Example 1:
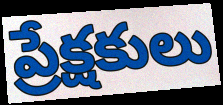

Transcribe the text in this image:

ప్రేక్షకులు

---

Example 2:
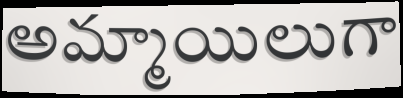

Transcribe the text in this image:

అమ్మాయిలుగా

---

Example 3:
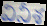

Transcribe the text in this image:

వినీశ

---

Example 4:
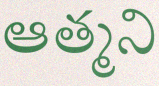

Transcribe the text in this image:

ఆత్మని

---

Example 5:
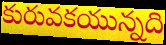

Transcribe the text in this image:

కురువకయున్నది